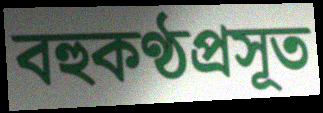
বহুকণ্ঠপ্রসূত